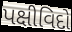
પક્ષીવિદો